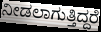
ನೀಡಲಾಗುತ್ತಿದ್ದರೆ